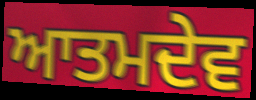
ਆਤਮਦੇਵ